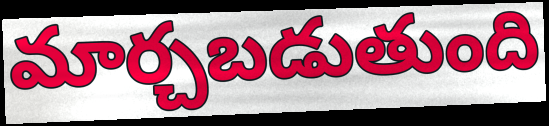
మార్చబడుతుంది